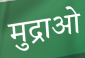
मुद्राओ